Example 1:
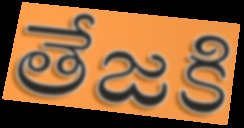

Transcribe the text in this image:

తేజకి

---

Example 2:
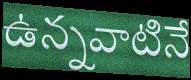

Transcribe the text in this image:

ఉన్నవాటినే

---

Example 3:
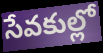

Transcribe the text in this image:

సేవకుల్లో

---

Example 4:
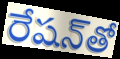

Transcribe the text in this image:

రేషన్‌తో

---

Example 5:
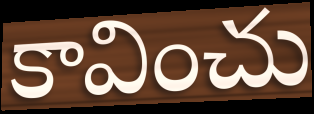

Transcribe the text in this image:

కావించు